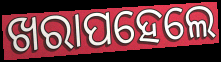
ଖରାପହେଲେ